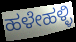
ಹಳೇಹಳ್ಳಿ